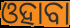
ଓହାବା